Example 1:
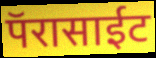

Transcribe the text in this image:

पॅरासाईट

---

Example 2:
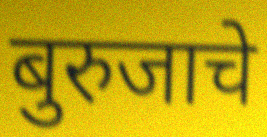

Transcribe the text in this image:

बुरुजाचे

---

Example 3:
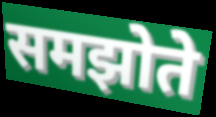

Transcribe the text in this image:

समझोते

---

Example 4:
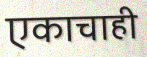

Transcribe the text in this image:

एकाचाही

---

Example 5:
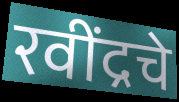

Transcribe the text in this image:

रवींद्रचे